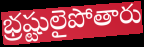
భ్రష్టులైపోతారు